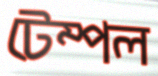
টেম্পল